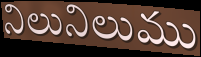
నిలునిలుము